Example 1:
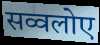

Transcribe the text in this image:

सव्वलोए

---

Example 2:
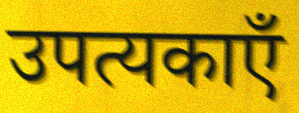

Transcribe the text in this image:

उपत्यकाएँ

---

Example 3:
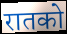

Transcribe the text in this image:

रातको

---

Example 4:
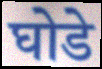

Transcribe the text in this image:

घोडे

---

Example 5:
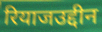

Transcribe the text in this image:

रियाजउद्दीन